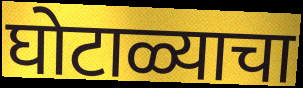
घोटाळ्याचा